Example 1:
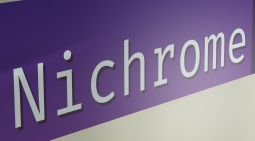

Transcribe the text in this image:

Nichrome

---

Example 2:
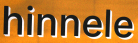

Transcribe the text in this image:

hinnele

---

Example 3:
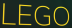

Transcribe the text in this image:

LEGO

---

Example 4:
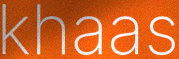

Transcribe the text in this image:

khaas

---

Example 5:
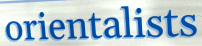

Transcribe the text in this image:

orientalists